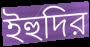
ইহুদির